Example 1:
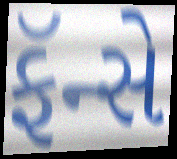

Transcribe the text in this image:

ફૅન્સે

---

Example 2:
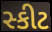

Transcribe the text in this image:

સ્કીટ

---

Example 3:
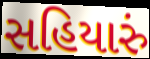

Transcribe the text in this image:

સહિયારું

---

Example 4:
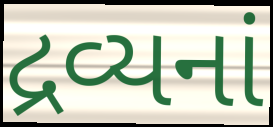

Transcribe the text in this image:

દ્રવ્યનાં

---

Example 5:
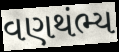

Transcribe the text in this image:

વણથંભ્ય